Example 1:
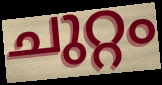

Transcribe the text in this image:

ചുറ്റം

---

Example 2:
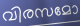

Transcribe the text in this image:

വിരസമോ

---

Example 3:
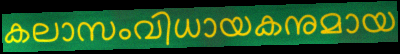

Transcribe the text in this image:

കലാസംവിധായകനുമായ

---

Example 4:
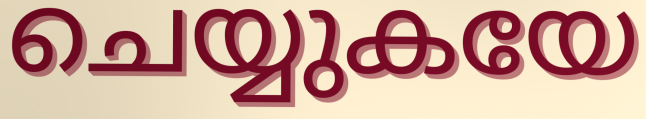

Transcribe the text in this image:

ചെയ്യുകയേ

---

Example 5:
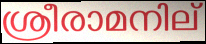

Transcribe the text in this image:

ശ്രീരാമനില്